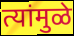
त्यांमुळे